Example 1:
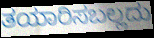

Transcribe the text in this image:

ತಯಾರಿಸಬಲ್ಲದು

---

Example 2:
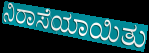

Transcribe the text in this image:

ನಿರಾಸೆಯಾಯಿತು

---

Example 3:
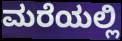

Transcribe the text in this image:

ಮರೆಯಲ್ಲಿ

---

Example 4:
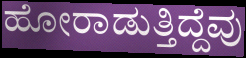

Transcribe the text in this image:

ಹೋರಾಡುತ್ತಿದ್ದೆವು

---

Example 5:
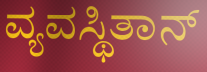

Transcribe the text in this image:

ವ್ಯವಸ್ಥಿತಾನ್